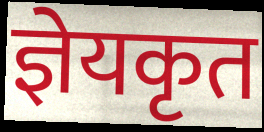
ज्ञेयकृत